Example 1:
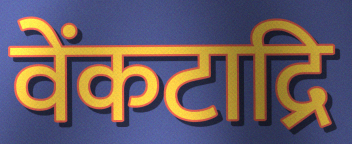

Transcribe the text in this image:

वेंकटाद्रि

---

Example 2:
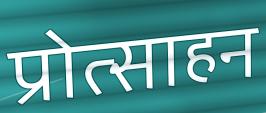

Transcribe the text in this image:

प्रोत्‍साहन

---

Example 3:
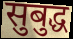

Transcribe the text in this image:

सुबुद्ध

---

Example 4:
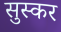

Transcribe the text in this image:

सुस्कर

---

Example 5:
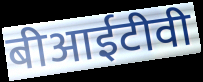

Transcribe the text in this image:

बीआईटीवी